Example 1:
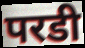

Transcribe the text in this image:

परडी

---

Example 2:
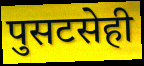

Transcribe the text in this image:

पुसटसेही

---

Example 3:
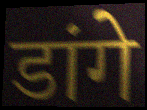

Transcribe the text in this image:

डांगे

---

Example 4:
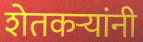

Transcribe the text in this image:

शेतकऱ्यांनी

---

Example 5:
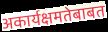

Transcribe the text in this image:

अकार्यक्षमतेबाबत